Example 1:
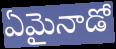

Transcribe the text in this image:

ఏమైనాడో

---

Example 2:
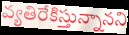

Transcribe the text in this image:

వ్యతిరేకిస్తున్నానని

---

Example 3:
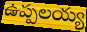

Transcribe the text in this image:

ఉప్పలయ్య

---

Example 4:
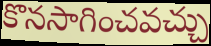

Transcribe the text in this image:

కొనసాగించవచ్చు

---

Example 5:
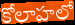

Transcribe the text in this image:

కోలాహలో